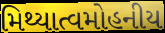
મિથ્યાત્વમોહનીય